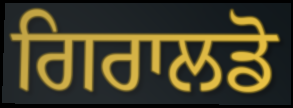
ਗਿਰਾਲਡੋ